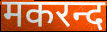
मकरन्द